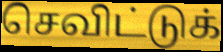
செவிட்டுக்